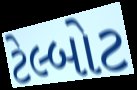
ટેલ્બોટ